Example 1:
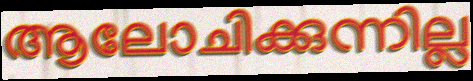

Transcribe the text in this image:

ആലോചിക്കുന്നില്ല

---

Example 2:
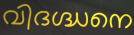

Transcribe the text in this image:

വിദഗ്ദ്ധനെ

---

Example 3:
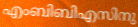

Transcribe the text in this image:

എംബിബിഎസിനു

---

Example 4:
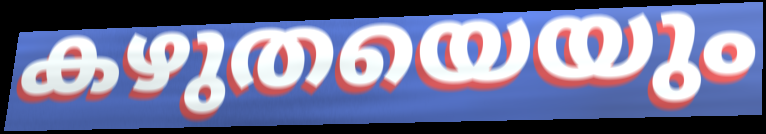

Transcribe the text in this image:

കഴുതയെയും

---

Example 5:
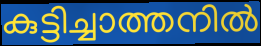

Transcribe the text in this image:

കുട്ടിച്ചാത്തനിൽ